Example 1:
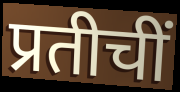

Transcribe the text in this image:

प्रतीचीं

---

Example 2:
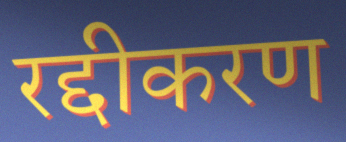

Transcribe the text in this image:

रद्दीकरण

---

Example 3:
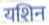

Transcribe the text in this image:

यशिन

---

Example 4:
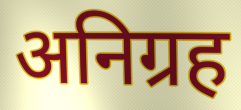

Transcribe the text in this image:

अनिग्रह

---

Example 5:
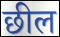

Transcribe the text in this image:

छील